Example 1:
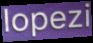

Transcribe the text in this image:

lopezi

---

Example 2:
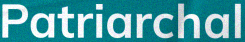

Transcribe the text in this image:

Patriarchal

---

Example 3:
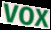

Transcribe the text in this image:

vox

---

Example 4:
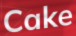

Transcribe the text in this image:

Cake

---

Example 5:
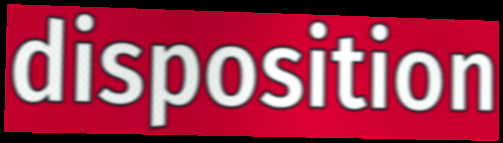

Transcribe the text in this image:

disposition